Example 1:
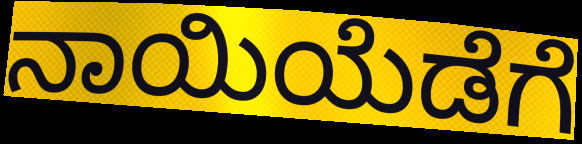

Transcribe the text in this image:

ನಾಯಿಯೆಡೆಗೆ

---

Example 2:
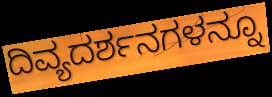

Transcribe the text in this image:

ದಿವ್ಯದರ್ಶನಗಳನ್ನೂ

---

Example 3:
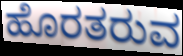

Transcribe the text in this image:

ಹೊರತರುವ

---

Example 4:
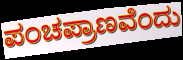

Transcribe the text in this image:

ಪಂಚಪ್ರಾಣವೆಂದು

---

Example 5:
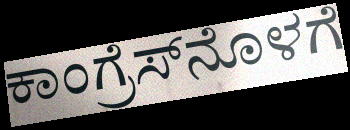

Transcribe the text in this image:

ಕಾಂಗ್ರೆಸ್‌ನೊಳಗೆ